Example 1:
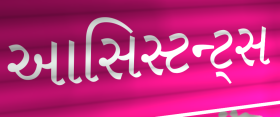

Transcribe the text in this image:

આસિસ્ટન્ટ્સ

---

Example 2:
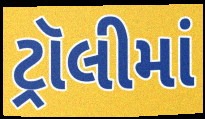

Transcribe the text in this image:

ટ્રૉલીમાં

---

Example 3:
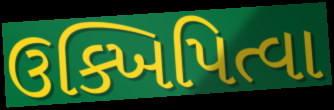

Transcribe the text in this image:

ઉક્ખિપિત્વા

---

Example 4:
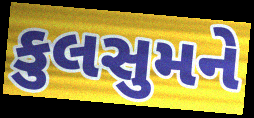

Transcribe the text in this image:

કુલસુમને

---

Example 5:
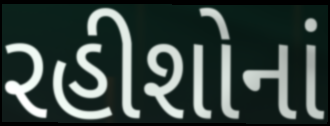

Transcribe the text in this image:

રહીશોનાં